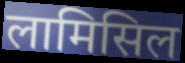
लामिसिल